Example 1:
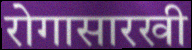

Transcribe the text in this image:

रोगासारखी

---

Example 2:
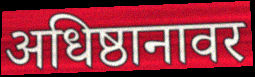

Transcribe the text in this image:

अधिष्ठानावर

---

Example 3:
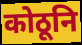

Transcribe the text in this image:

कोठूनि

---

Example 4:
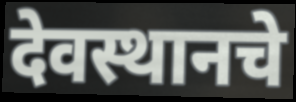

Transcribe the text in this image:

देवस्थानचे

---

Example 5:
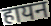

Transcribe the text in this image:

हायन